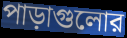
পাড়াগুলোর